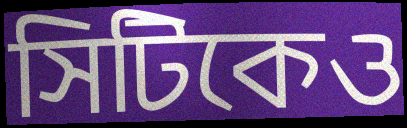
সিটিকেও